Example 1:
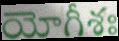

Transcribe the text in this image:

యోగీశః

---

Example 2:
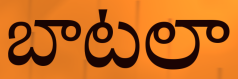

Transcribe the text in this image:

బాటలా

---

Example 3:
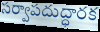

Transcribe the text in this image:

సర్వాపదుద్ధారక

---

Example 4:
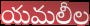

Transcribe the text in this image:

యమలీల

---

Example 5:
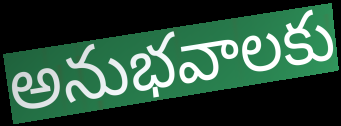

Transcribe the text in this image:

అనుభవాలకు